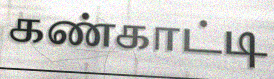
கண்காட்டி